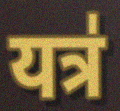
यत्र॑